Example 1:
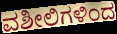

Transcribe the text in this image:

ವಶೀಲಿಗಳಿಂದ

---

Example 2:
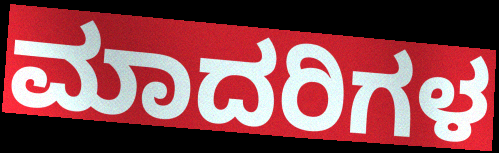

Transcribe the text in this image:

ಮಾದರಿಗಳ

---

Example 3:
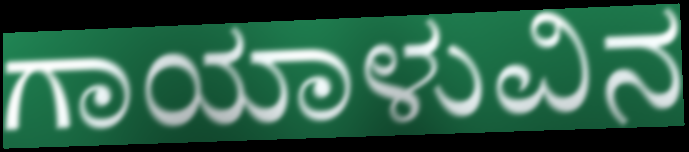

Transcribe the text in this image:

ಗಾಯಾಳುವಿನ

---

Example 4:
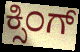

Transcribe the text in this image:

ಕ್ಸಿಂಗ್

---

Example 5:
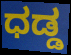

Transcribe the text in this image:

ಧಡ್ಡ